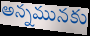
అన్నమునకు